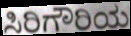
ಸಿರಿಗೌರಿಯ